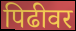
पिढीवर